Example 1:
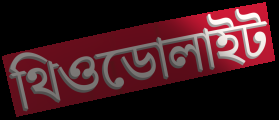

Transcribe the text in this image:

থিওডোলাইট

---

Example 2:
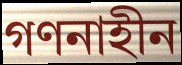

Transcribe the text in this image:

গণনাহীন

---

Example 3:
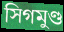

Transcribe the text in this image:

সিগমুণ্ড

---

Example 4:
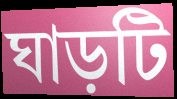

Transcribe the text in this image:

ঘাড়টি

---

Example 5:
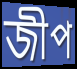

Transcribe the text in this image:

জীপ